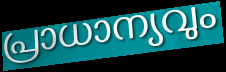
പ്രാധാന്യവും